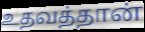
உதவத்தான்